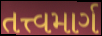
તત્ત્વમાર્ગ